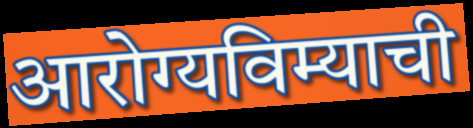
आरोग्यविम्याची